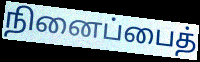
நினைப்பைத்